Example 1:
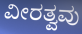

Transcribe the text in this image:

ವೀರತ್ವವು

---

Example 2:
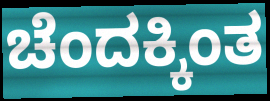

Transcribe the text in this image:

ಚೆಂದಕ್ಕಿಂತ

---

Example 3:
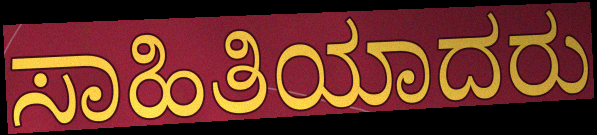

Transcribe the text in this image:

ಸಾಹಿತಿಯಾದರು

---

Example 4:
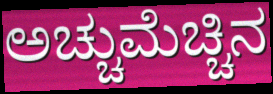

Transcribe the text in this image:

ಅಚ್ಚುಮೆಚ್ಚಿನ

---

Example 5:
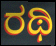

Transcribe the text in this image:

ರಥಿ